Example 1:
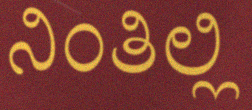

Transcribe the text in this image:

ನಿಂತಿಲ್ಲಿ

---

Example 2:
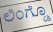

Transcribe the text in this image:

ಲಿಂಗ್ಡೊ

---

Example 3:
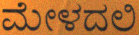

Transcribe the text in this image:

ಮೇಳದಲಿ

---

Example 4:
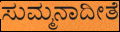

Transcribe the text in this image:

ಸುಮ್ಮನಾದೀತೆ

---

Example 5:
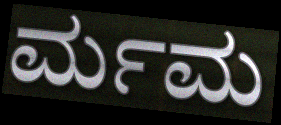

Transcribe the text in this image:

ರ್ಮಮ